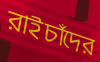
রাইচাঁদের